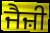
ਜੈਜ਼ੀ